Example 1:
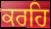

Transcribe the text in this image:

ਕਰਹਿ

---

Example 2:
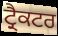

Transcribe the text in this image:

ਟ੍ਰੈਕਟਰ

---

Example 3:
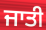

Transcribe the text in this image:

ਜਾਤੀ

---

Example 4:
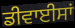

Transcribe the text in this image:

ਡੀਵਾਈਸਾਂ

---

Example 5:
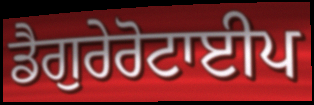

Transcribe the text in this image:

ਡੈਗੁਰੇਰੋਟਾਈਪ